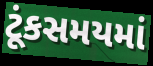
ટૂંકસમયમાં